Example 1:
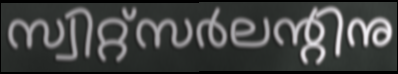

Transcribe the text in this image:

സ്വിറ്റ്സർലന്റിനു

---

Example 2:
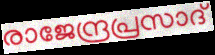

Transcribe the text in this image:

രാജേന്ദ്രപ്രസാദ്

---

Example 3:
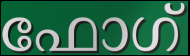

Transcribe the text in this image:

ഫോഗ്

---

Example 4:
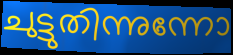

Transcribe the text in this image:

ചുട്ടുതിന്നുന്നോ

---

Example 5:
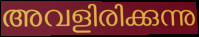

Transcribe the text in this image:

അവളിരിക്കുന്നു